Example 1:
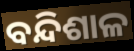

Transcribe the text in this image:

ବନ୍ଦିଶାଳ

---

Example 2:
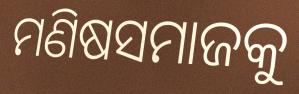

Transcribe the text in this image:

ମଣିଷସମାଜକୁ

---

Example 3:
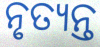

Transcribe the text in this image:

ନୃତ୍ୟନ୍ତ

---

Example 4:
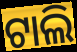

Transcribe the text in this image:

ଟାଲି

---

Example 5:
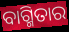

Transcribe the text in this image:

ବାଗ୍ମିତାର